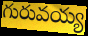
గురువయ్య